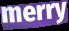
merry